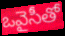
ఒవైసీతో